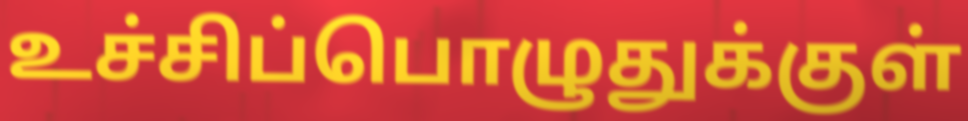
உச்சிப்பொழுதுக்குள்